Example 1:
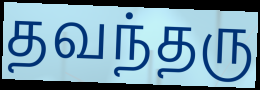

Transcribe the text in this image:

தவந்தரு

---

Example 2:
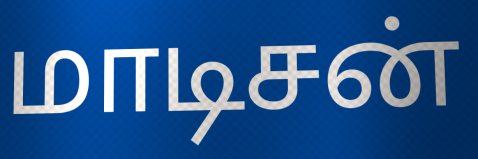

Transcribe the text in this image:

மாடிசன்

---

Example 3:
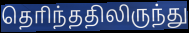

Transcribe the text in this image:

தெரிந்ததிலிருந்து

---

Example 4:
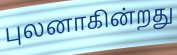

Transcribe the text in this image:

புலனாகின்றது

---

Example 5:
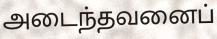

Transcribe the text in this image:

அடைந்தவனைப்